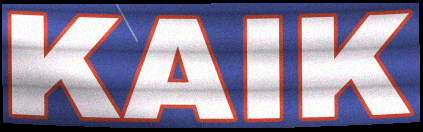
KAIK